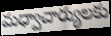
మధ్వాచార్యులకు